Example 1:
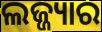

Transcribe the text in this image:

ଲଜ୍ଜ୍ୟାର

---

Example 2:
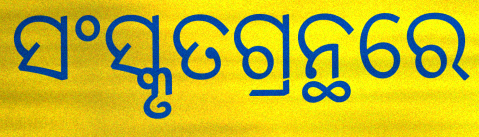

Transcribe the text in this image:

ସଂସ୍କୃତଗ୍ରନ୍ଥରେ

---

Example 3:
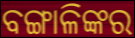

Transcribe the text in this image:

ବଙ୍ଗାଳିଙ୍କର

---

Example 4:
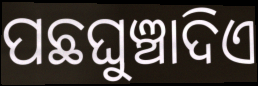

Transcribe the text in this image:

ପଛଘୁଞ୍ଚାଦିଏ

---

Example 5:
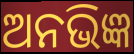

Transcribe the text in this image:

ଅନଭିଜ୍ଞ